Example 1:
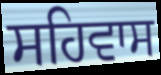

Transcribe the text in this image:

ਸਹਿਵਾਸ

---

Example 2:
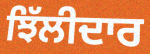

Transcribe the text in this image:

ਝਿੱਲੀਦਾਰ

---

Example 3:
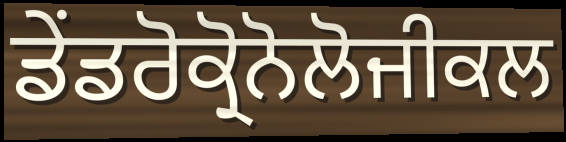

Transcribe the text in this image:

ਡੇਂਡਰੋਕ੍ਰੋਨੋਲੋਜੀਕਲ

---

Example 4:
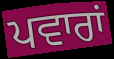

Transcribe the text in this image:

ਪਵਾਰਾਂ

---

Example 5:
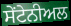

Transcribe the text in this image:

ਸੇਂਟੇਨੀਅਲ